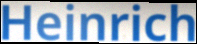
Heinrich